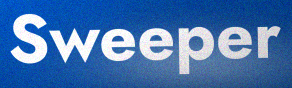
Sweeper